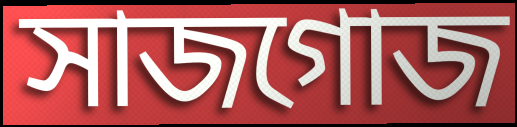
সাজগোজ